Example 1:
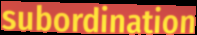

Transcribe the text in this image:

subordination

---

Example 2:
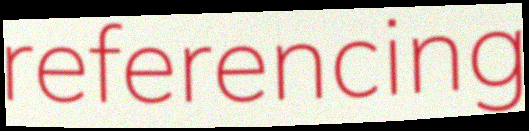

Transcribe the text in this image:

referencing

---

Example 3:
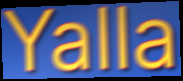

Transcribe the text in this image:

Yalla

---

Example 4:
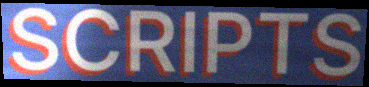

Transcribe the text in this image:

SCRIPTS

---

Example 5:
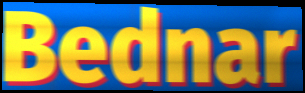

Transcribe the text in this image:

Bednar